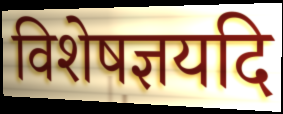
विशेषज्ञयदि